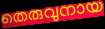
തെരുവുനായ